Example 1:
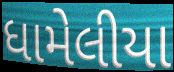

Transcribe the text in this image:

ધામેલીયા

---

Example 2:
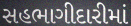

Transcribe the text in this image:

સહભાગીદારીમાં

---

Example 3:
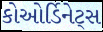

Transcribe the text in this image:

કોઓર્ડિનેટ્સ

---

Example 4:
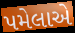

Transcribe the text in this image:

પમેલાએ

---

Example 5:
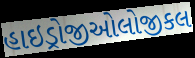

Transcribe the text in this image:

હાઇડ્રોજીઓલોજીકલ